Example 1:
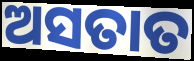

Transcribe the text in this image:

ଅସତାତ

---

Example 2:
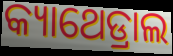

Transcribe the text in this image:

କ୍ୟାଥେଡ୍ରାଲ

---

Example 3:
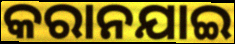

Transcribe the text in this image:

କରାନଯାଇ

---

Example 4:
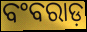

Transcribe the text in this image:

ବଂବରାଡ଼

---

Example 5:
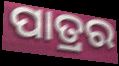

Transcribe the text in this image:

ପାତ୍ରର